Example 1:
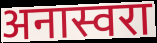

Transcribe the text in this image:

अनास्वरा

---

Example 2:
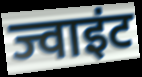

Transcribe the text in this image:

ज्वाइंट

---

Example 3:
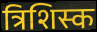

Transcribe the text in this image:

त्रिशिस्क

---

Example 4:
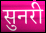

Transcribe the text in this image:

सुनरी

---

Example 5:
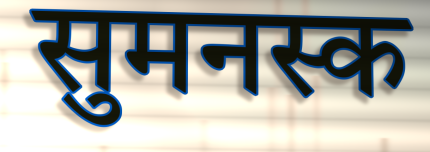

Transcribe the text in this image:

सुमनस्क